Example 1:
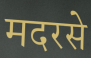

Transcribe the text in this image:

मदरसे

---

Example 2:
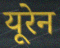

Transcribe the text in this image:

यूरेन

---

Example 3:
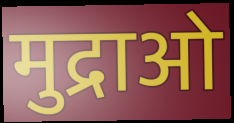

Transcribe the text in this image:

मुद्राओ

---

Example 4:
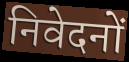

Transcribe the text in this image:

निवेदनों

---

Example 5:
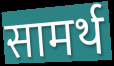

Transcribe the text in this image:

सामर्थ